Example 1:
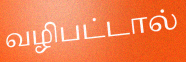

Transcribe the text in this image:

வழிபட்டால்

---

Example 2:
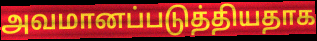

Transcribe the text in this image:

அவமானப்படுத்தியதாக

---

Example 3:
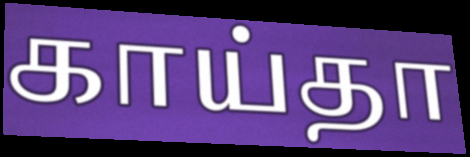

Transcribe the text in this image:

காய்தா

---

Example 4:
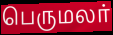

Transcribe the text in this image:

பெருமலர்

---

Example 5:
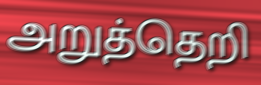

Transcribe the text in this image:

அறுத்தெறி